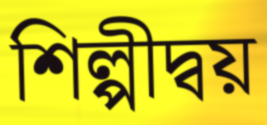
শিল্পীদ্বয়